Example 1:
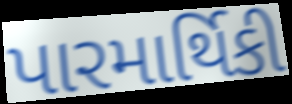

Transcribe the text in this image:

પારમાર્થિકી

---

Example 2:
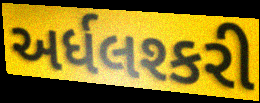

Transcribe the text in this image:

અર્ધલશ્કરી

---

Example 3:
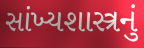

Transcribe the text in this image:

સાંખ્યશાસ્ત્રનું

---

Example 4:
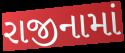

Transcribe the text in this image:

રાજીનામાં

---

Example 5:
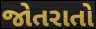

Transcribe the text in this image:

જોતરાતો